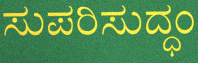
ಸುಪರಿಸುದ್ಧಂ